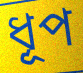
ধূপ